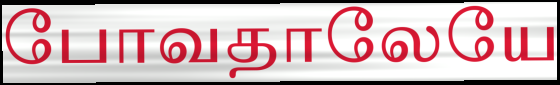
போவதாலேயே